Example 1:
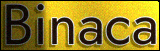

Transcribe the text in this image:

Binaca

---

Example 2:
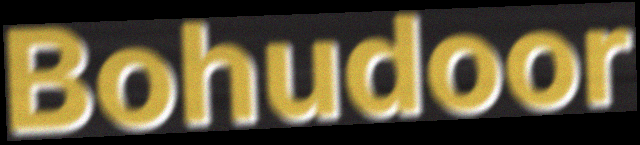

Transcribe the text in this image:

Bohudoor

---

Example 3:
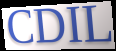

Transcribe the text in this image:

CDIL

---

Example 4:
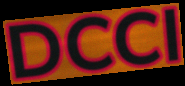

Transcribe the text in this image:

DCCI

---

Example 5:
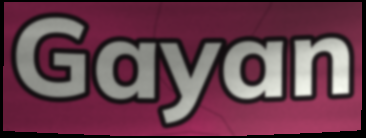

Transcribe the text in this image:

Gayan